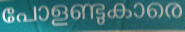
പോളണ്ടുകാരെ